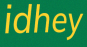
idhey